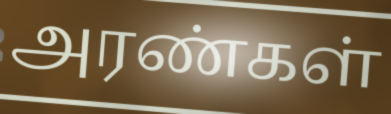
அரண்கள்